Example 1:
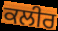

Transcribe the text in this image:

ਕਲੀਰ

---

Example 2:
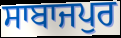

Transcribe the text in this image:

ਸਾਬਾਜਪੁਰ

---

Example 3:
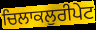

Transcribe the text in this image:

ਚਿਲਾਕਲੁਰੀਪੇਟ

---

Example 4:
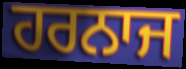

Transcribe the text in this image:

ਹਰਨਾਜ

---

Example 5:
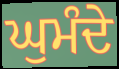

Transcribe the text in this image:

ਘੁਮੰਦੇ